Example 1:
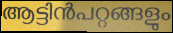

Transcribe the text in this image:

ആട്ടിൻപറ്റങ്ങളും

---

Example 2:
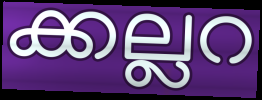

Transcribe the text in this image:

ക്കല്ലറ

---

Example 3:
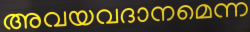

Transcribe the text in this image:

അവയവദാനമെന്ന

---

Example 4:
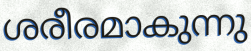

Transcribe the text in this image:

ശരീരമാകുന്നു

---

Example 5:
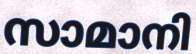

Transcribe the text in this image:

സാമാനി